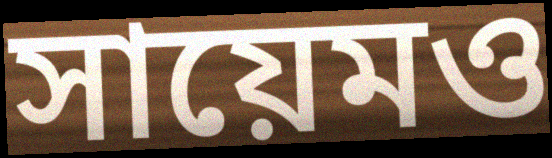
সায়েমও